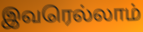
இவரெல்லாம்